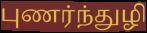
புணர்ந்துழி